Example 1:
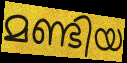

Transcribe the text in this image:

മണ്ടിയ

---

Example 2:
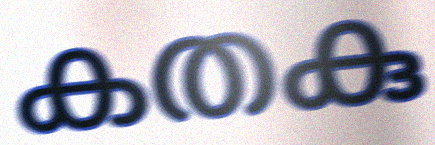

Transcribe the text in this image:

കതകു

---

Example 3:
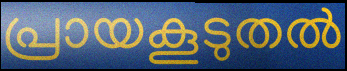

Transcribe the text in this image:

പ്രായകൂടുതൽ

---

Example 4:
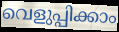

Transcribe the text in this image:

വെളുപ്പിക്കാം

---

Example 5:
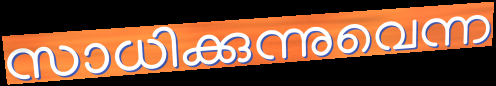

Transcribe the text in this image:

സാധിക്കുന്നുവെന്ന